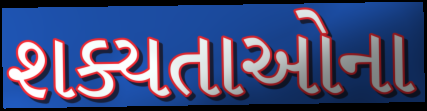
શક્યતાઓના